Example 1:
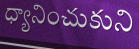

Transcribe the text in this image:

ధ్యానించుకుని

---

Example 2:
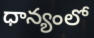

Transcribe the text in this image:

ధాన్యంలో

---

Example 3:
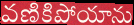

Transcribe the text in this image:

వణికిపోయాను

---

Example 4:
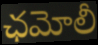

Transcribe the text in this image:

ఛమోలీ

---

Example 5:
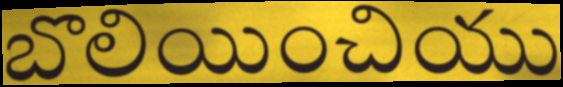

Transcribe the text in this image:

బొలియించియు